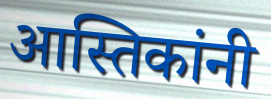
आस्तिकांनी